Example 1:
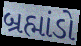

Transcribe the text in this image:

બ્રહ્માંડો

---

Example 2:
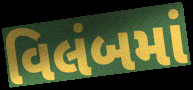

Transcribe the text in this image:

વિલંબમાં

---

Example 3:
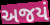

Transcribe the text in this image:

અજયં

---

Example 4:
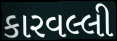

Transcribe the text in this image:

કારવલ્લી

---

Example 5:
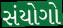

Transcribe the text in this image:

સંયોગો